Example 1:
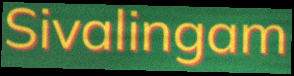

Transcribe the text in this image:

Sivalingam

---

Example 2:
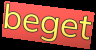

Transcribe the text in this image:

beget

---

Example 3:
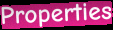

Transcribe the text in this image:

Properties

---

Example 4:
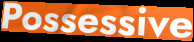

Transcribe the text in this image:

Possessive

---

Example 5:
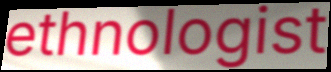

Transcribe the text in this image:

ethnologist